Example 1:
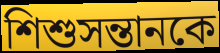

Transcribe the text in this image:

শিশুসন্তানকে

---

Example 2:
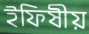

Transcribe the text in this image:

ইফিষীয়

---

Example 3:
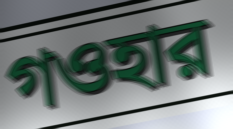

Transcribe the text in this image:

গওহার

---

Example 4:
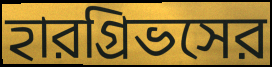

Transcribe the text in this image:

হারগ্রিভসের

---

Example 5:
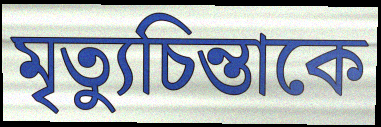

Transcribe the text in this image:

মৃত্যুচিন্তাকে